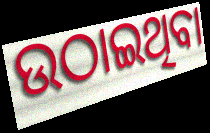
ଉଠାଇଥିବା